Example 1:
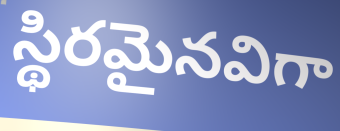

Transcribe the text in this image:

స్థిరమైనవిగా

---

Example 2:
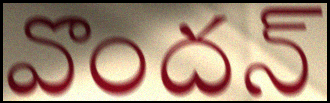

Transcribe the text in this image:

వొందన్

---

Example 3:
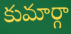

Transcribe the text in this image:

కుమార్గా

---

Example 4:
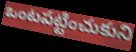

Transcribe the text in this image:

ఒంటపట్టించుకుని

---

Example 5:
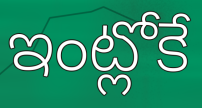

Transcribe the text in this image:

ఇంట్లోకే